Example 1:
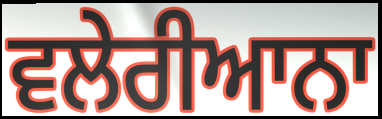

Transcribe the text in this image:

ਵਲੇਰੀਆਨਾ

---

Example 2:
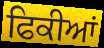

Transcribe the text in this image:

ਫਿਕੀਆਂ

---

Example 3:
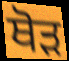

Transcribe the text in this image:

ਥੋੜ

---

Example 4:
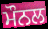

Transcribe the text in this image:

ਮੌਨਲ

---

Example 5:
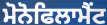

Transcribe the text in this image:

ਮੋਨੋਫਿਲਾਮੈਂਟ